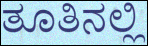
ತೂತಿನಲ್ಲಿ